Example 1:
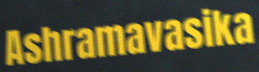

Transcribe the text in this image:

Ashramavasika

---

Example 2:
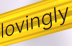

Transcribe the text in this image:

lovingly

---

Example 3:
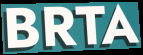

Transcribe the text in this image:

BRTA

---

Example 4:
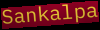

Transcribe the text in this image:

Sankalpa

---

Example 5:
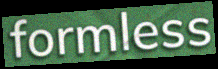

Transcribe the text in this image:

formless